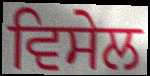
ਵਿਸੇਲ